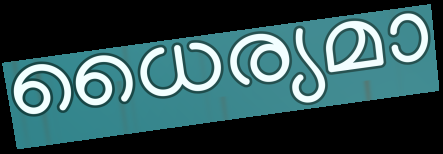
ധൈര്യമാ